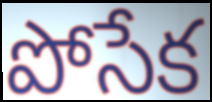
పోసేక